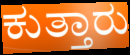
ಕುತ್ತಾರು